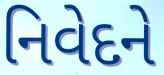
નિવેદને